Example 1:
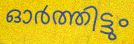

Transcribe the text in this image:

ഓർത്തിട്ടും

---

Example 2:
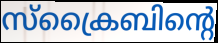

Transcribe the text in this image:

സ്ക്രൈബിന്റെ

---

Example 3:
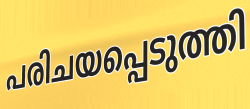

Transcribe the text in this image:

പരിചയപ്പെടുത്തി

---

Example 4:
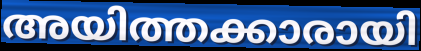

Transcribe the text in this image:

അയിത്തക്കാരായി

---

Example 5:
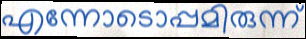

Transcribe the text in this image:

എന്നോടൊപ്പമിരുന്ന്